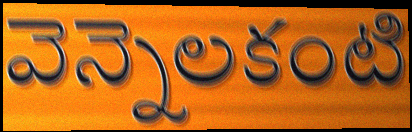
వెన్నెలకంటి